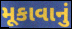
મૂકાવાનું